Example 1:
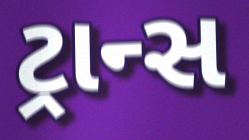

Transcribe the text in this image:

ટ્રાન્સ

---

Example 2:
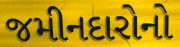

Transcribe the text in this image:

જમીનદારોનો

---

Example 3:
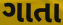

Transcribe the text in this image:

ગાતા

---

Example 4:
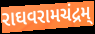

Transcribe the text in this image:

રાઘવરામચંદ્રમ્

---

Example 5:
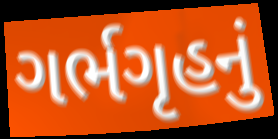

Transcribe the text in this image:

ગર્ભગૃહનું